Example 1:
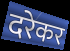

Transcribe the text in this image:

दरेकर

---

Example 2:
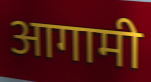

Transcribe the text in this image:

आगामी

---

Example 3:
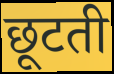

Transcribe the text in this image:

छूटती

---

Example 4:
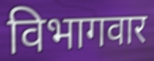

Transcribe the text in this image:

विभागवार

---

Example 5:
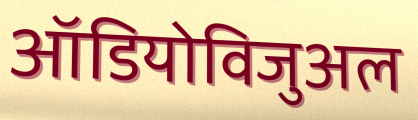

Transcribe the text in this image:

ऑडियोविजुअल